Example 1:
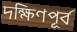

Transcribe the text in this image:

দক্ষিণপূর্ব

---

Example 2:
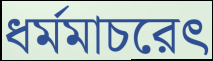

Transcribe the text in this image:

ধর্মমাচরেৎ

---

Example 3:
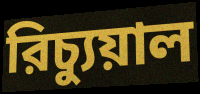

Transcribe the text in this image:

রিচ্যুয়াল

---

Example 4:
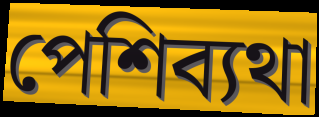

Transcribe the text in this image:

পেশিব্যথা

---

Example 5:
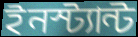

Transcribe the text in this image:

ইনস্ট্যান্ট